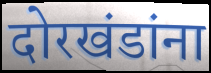
दोरखंडांना